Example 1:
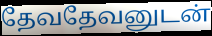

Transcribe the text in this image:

தேவதேவனுடன்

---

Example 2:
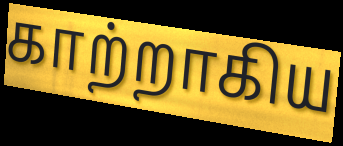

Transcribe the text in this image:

காற்றாகிய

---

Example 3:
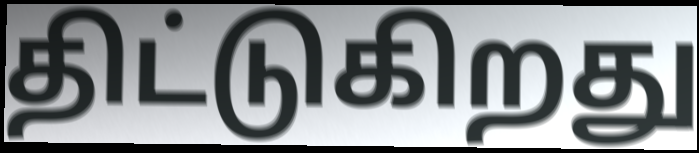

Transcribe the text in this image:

திட்டுகிறது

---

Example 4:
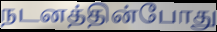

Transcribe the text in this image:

நடனத்தின்போது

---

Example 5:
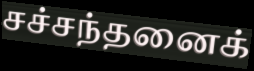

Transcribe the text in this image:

சச்சந்தனைக்